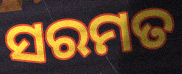
ସରମତ